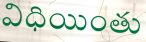
విధియింతు